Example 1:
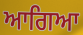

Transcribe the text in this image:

ਆਗਿਆ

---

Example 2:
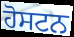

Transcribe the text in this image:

ਹੋਸਟਨ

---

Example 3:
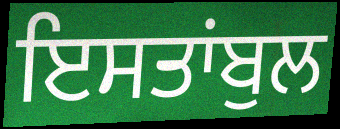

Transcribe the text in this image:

ਇਸਤਾਂਬੁਲ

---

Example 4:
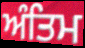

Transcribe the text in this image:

ਅੰਤਿਮ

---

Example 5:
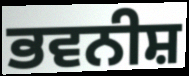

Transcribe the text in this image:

ਭਵਨੀਸ਼